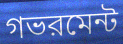
গভরমেন্ট